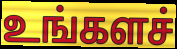
உங்களச்